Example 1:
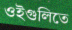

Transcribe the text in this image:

ওইগুলিতে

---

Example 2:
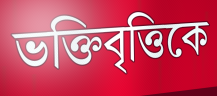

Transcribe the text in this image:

ভক্তিবৃত্তিকে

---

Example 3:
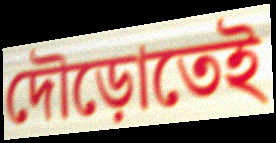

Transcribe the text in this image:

দৌড়োতেই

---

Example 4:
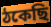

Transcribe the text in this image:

ঠকেছি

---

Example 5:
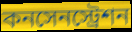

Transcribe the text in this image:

কনসেনস্ট্রেশন